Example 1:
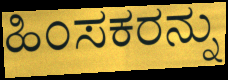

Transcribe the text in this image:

ಹಿಂಸಕರನ್ನು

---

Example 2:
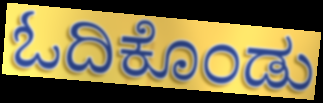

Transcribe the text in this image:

ಓದಿಕೊಂಡು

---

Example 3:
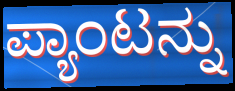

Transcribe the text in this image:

ಪ್ಯಾಂಟನ್ನು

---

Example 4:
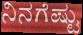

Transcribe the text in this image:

ನಿನಗೆಷ್ಟು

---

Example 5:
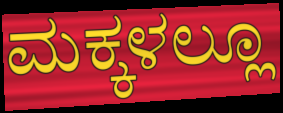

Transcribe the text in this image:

ಮಕ್ಕಳಲ್ಲೂ